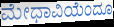
ಮೇಧಾವಿಯೆಂದೂ